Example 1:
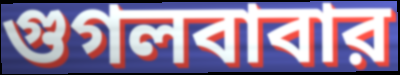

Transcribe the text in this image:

গুগলবাবার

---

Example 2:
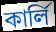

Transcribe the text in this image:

কার্লি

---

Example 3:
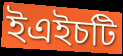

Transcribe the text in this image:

ইএইচটি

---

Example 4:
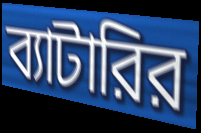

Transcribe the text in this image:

ব্যাটারির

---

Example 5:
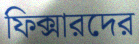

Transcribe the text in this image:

ফিক্সারদের